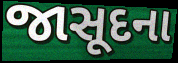
જાસૂદના